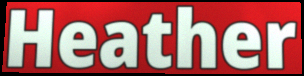
Heather